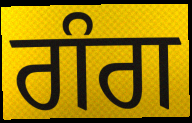
ਗੰਗ